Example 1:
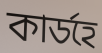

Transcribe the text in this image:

কাৰ্ডহে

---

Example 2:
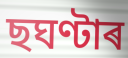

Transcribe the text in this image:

ছঘণ্টাৰ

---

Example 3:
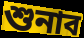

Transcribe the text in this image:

শুনাব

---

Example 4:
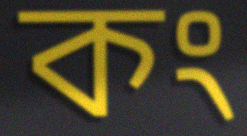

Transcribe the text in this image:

কং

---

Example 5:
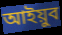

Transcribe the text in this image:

আইয়ুব